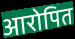
आरोपित